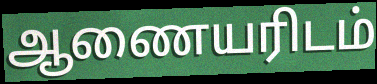
ஆணையரிடம்